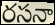
రసనా